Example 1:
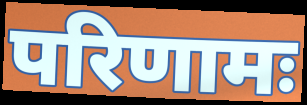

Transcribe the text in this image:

परिणामः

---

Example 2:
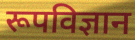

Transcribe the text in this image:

रूपविज्ञान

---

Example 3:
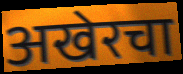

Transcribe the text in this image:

अखेरचा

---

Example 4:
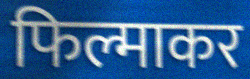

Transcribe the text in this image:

फिल्माकर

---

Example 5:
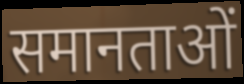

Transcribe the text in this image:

समानताओं